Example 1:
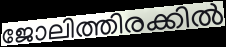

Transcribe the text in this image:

ജോലിത്തിരക്കിൽ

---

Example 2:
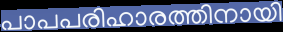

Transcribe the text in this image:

പാപപരിഹാരത്തിനായി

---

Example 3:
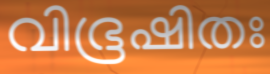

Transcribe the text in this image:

വിഭൂഷിതഃ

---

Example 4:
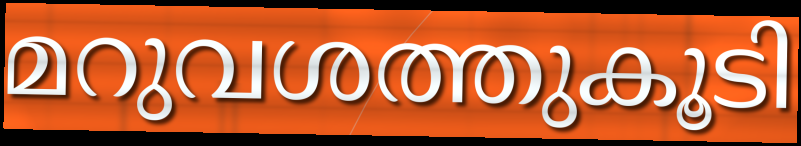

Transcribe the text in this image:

മറുവശത്തുകൂടി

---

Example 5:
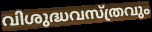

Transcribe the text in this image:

വിശുദ്ധവസ്ത്രവും